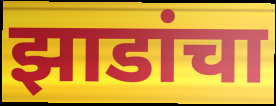
झाडांचा